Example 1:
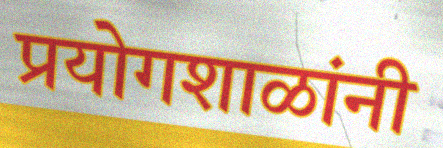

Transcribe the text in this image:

प्रयोगशाळांनी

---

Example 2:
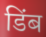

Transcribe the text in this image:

डिंब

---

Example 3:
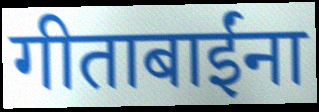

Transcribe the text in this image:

गीताबाईंना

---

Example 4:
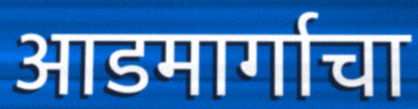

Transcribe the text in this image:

आडमार्गाचा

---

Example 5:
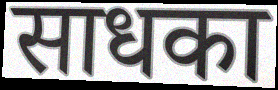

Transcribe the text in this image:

साधका